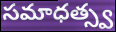
సమాధత్స్వ